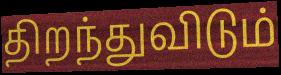
திறந்துவிடும்